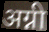
अग्नी